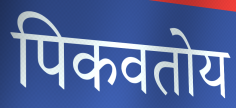
पिकवतोय